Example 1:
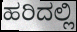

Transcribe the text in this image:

ಹರಿದಲ್ಲಿ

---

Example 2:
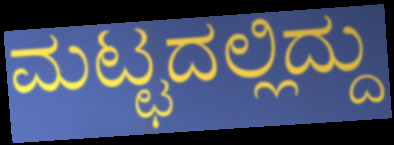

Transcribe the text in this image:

ಮಟ್ಟದಲ್ಲಿದ್ದು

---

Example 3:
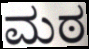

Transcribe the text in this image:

ಮಠ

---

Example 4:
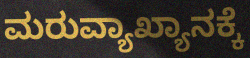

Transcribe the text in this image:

ಮರುವ್ಯಾಖ್ಯಾನಕ್ಕೆ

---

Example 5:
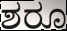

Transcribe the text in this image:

ಶರೂ